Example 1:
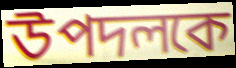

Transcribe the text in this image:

উপদলকে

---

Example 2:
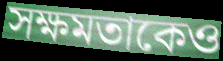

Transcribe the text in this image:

সক্ষমতাকেও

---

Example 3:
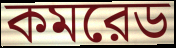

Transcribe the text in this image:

কমরেড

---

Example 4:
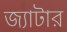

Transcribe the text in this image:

জ্যাটার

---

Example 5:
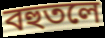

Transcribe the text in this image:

বহুতলে